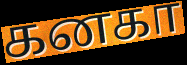
கனகா